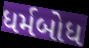
ધર્મબોધ